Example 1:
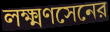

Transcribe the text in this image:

লক্ষ্মণসেনের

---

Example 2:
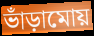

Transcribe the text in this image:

ভাঁড়ামোয়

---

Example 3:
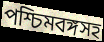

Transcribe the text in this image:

পশ্চিমবঙ্গসহ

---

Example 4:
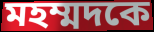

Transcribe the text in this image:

মহম্মদকে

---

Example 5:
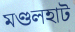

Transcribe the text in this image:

মণ্ডলহাট